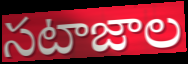
సటాజాల